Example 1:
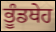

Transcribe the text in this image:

ਭੂੰਡਥੇਹ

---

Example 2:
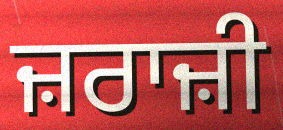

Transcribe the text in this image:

ਜ਼ਰਾਜ਼ੀ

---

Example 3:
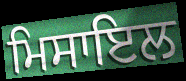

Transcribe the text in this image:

ਮਿਸਾਇਲ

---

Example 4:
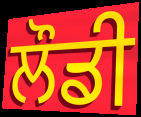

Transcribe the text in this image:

ਲੌਡੀ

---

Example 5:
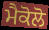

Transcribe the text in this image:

ਮੈਕੋਲੋ